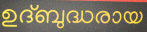
ഉദ്ബുദ്ധരായ